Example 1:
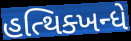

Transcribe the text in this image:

હત્થિક્ખન્ધે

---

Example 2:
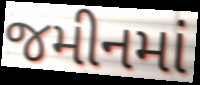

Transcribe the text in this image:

જમીનમાં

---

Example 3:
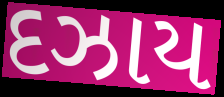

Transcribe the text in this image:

દઝાય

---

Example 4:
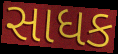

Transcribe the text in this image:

સાધક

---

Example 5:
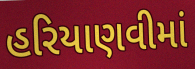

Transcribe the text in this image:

હરિયાણવીમાં